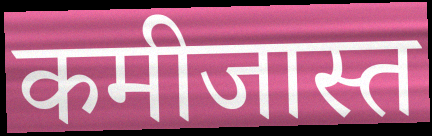
कमीजास्त